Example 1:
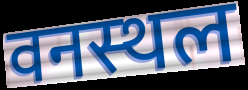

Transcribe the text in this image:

वनस्थल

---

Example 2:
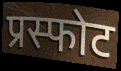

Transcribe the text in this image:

प्रस्फोट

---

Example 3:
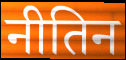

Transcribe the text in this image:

नीतिन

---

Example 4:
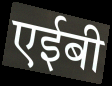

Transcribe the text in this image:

एईबी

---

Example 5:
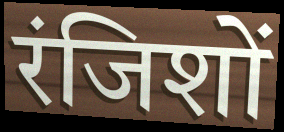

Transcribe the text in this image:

रंजिशों